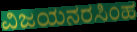
ವಿಜಯನರಸಿಂಹ